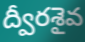
ద్వీరశైవ